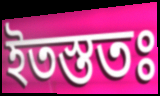
ইতস্ততঃ